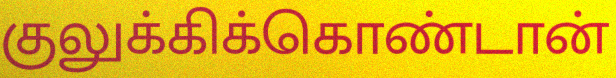
குலுக்கிக்கொண்டான்